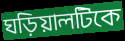
ঘড়িয়ালটিকে